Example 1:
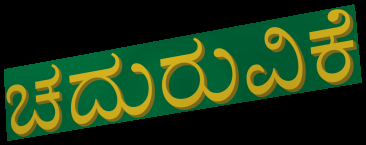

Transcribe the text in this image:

ಚದುರುವಿಕೆ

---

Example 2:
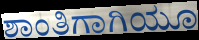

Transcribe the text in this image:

ಶಾಂತಿಗಾಗಿಯೂ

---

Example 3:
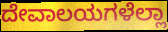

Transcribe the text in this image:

ದೇವಾಲಯಗಳೆಲ್ಲಾ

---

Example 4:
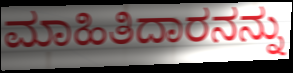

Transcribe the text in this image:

ಮಾಹಿತಿದಾರನನ್ನು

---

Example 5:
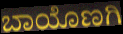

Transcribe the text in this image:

ಬಾಯೊಣಗಿ